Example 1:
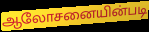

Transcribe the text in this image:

ஆலோசனையின்படி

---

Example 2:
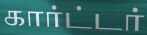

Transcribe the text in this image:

கார்ட்டர்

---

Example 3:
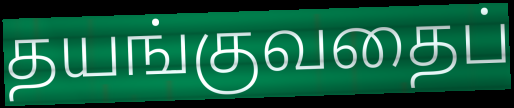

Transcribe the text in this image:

தயங்குவதைப்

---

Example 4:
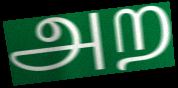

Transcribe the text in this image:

அற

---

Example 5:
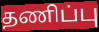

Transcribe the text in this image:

தணிப்பு